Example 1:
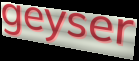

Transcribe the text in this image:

geyser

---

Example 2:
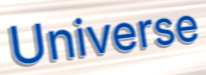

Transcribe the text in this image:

Universe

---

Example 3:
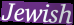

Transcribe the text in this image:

Jewish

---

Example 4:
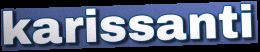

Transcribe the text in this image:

karissanti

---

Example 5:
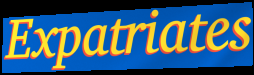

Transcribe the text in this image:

Expatriates